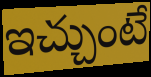
ఇచ్చుంటే